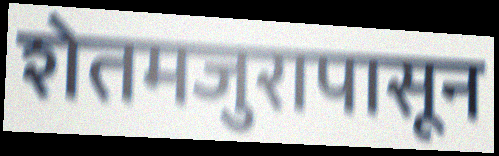
शेतमजुरापासून